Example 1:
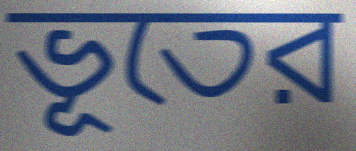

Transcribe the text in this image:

ভূতের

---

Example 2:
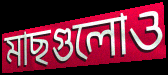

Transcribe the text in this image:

মাছগুলোও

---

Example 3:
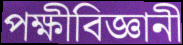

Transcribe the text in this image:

পক্ষীবিজ্ঞানী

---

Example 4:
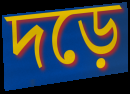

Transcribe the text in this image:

দড়ে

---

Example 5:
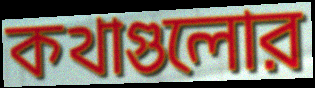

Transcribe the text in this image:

কথাগুলোর